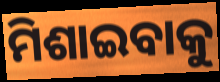
ମିଶାଇବାକୁ